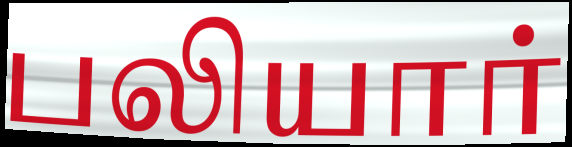
பலியார்